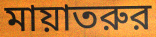
মায়াতরুর